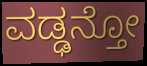
ವಡ್ಢನ್ತೋ